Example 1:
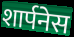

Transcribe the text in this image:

शार्पनेस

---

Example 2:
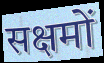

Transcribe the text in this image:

सक्षमों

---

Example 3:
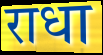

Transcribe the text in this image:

राधा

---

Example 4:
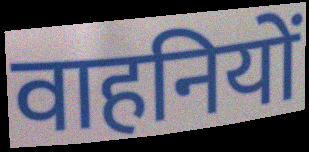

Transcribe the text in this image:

वाहनियों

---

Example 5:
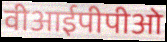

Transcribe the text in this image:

वीआईपीपीओ